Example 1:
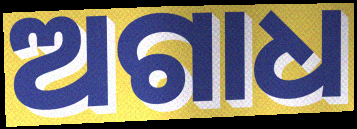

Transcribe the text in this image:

ଅଗାଧ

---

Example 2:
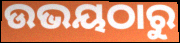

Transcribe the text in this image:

ଉଭୟଠାରୁ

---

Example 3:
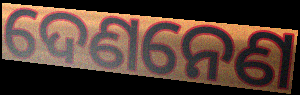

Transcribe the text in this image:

ଦେଣନେଣ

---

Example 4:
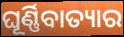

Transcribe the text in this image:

ଘୂର୍ଣ୍ଣିବାତ୍ୟାର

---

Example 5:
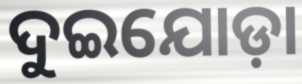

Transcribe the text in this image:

ଦୁଇଯୋଡ଼ା